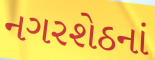
નગરશેઠનાં